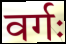
वर्गः